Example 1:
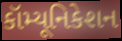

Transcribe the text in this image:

કૉમ્યૂનિકેશન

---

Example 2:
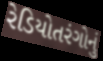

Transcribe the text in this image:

રેડિયોતરંગોનું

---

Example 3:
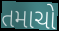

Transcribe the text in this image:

તમાચો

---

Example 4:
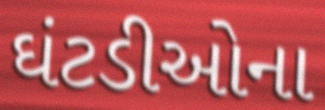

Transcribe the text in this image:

ઘંટડીઓના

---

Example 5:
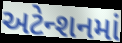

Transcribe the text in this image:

અટેન્શનમાં